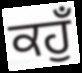
ਕਹੁਁ